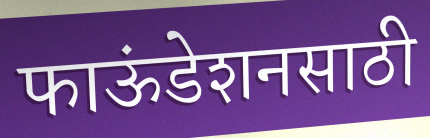
फाऊंडेशनसाठी